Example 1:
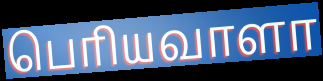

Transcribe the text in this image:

பெரியவாளா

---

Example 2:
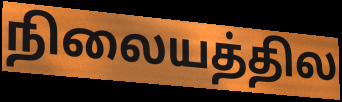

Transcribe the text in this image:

நிலையத்தில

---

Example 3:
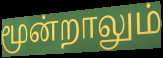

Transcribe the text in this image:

மூன்றாலும்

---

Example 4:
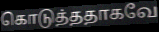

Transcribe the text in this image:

கொடுத்ததாகவே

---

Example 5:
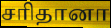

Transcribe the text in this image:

சரிதானா